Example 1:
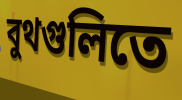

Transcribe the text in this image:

বুথগুলিতে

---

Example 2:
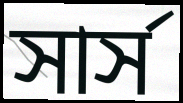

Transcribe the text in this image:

সার্স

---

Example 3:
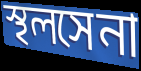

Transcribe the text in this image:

স্থলসেনা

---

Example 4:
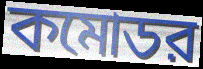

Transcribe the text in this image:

কমোডর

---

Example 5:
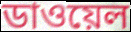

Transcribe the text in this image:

ডাওয়েল